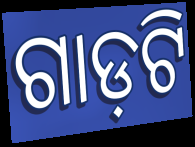
ଗାଡ଼ଟି